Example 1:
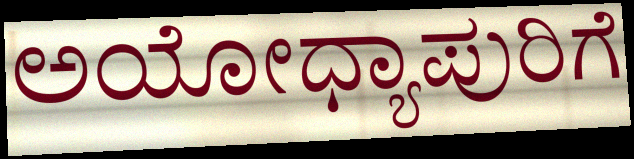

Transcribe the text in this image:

ಅಯೋಧ್ಯಾಪುರಿಗೆ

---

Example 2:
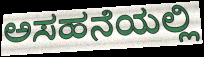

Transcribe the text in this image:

ಅಸಹನೆಯಲ್ಲಿ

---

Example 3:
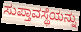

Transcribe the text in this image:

ಸುಪ್ತಾವಸ್ಥೆಯನ್ನು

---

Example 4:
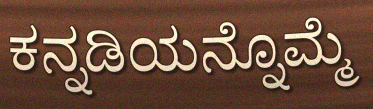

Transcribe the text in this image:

ಕನ್ನಡಿಯನ್ನೊಮ್ಮೆ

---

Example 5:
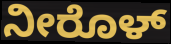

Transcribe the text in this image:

ನೀರೊಳ್